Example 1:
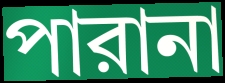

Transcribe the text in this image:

পারানা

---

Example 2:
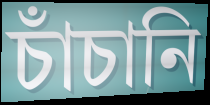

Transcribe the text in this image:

চাঁচানি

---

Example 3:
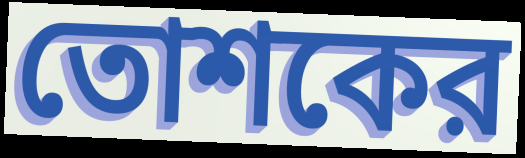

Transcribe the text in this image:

তোশকের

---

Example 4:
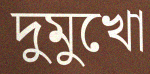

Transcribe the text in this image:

দুমুখো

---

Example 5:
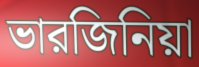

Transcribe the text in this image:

ভারজিনিয়া